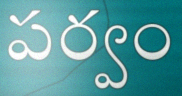
పర్వం